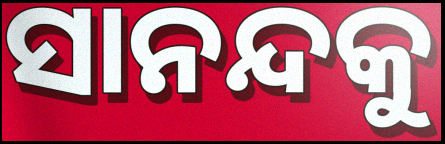
ସାନନ୍ଦକୁ